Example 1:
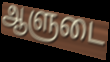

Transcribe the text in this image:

ஆளுடை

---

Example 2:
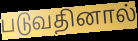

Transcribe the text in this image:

படுவதினால்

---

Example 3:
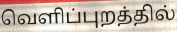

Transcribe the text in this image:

வெளிப்புறத்தில்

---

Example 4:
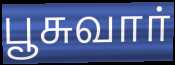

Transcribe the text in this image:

பூசுவார்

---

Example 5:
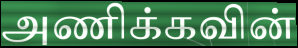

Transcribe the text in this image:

அணிக்கவின்